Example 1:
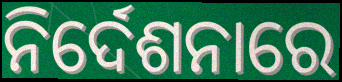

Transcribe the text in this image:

ନିର୍ଦେଶନାରେ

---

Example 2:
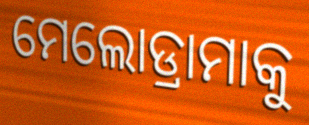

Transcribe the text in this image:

ମେଲୋଡ୍ରାମାକୁ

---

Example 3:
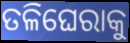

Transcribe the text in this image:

ତଳିଘେରାକୁ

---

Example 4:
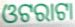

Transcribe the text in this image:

ଓଟରାଟା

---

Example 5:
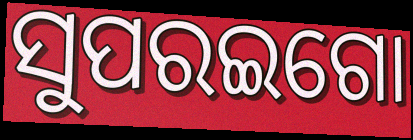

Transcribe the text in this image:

ସୁପରଇଗୋ